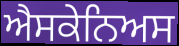
ਐਸਕੇਨਿਅਸ